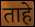
ताहे